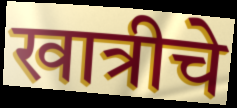
खात्रीचे